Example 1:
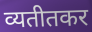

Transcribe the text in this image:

व्यतीतकर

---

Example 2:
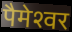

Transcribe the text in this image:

पैमेश्वर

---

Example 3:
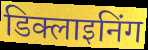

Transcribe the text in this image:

डिक्लाइनिंग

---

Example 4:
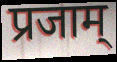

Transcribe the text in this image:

प्रजाम्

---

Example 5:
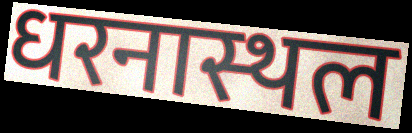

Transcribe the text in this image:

धरनास्थल